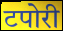
टपोरी